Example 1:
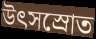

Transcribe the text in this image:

উৎসস্রোত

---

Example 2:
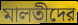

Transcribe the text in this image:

মালতীদের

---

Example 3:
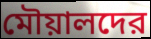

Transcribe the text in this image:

মৌয়ালদের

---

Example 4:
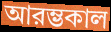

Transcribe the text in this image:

আরম্ভকাল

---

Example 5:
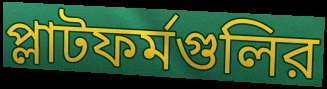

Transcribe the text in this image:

প্লাটফর্মগুলির